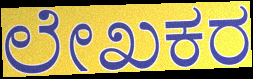
ಲೇಖಕರ